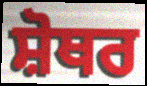
ਸ਼ੋਥਰ